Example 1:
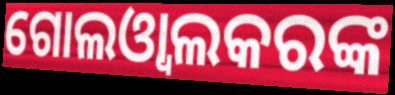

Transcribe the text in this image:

ଗୋଲଓ୍ଵାଲକରଙ୍କ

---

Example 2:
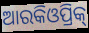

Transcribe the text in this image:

ଆରକିଓପ୍ରିକ୍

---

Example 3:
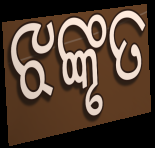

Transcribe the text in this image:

ଝଙ୍କୃତ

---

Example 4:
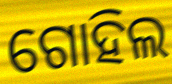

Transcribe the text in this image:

ଗୋହିଲ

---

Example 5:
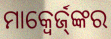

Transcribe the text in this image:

ମାକ୍ୱେର୍ଜ୍‌ଙ୍କର